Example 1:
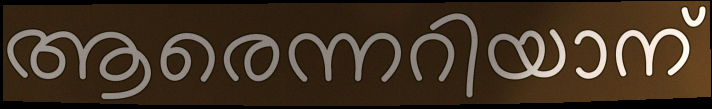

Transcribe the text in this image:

ആരെന്നറിയാന്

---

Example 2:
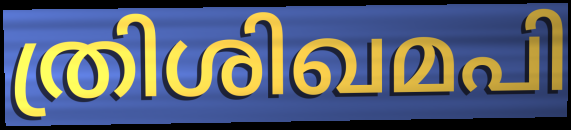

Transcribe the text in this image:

ത്രിശിഖമപി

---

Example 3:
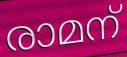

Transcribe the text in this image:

രാമന്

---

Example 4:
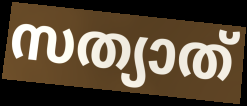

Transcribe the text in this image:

സത്യാത്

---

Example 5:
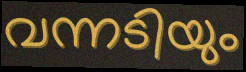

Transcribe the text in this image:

വന്നടിയും